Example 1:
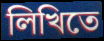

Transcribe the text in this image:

লিখিতে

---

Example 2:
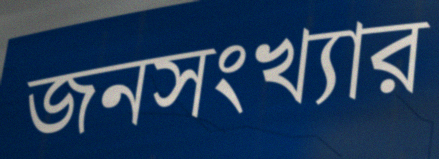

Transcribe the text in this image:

জনসংখ্যার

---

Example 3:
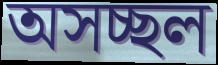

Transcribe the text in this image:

অসচ্ছল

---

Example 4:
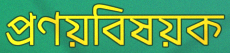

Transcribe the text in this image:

প্রণয়বিষয়ক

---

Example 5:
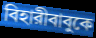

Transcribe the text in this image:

বিহারীবাবুকে